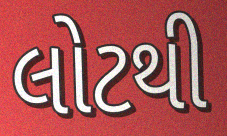
લોટથી